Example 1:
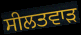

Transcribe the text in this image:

ਸੀਲਤਵਾੜ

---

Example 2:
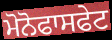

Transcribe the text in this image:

ਮੋਨੋਫਾਸਫੇਟ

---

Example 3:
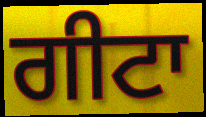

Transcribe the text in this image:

ਗੀਟਾ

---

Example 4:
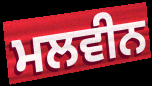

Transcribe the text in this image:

ਮਲਵੀਨ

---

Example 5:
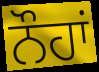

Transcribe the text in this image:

ਨੌਹਾਂ